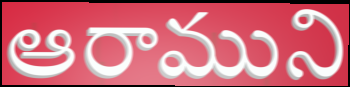
ఆరాముని